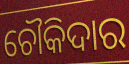
ଚୌକିଦାର